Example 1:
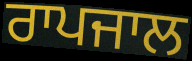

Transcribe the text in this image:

ਰਾਪਜਾਲ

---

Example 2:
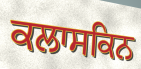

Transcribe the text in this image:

ਕਲਾਸਕਿਨ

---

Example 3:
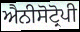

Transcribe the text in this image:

ਐਨੀਸੋਟ੍ਰੋਪੀ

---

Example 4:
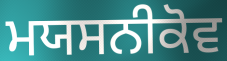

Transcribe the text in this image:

ਮਯਸਨੀਕੋਵ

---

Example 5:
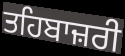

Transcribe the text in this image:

ਤਹਿਬਾਜ਼ਰੀ